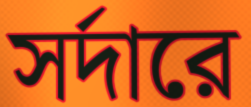
সর্দারে